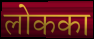
लोकका